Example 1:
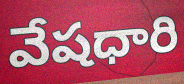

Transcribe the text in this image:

వేషధారి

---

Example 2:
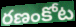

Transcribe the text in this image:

రణంకోట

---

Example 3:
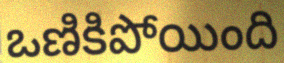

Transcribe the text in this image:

ఒణికిపోయింది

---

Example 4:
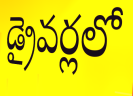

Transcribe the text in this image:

డ్రైవర్లలో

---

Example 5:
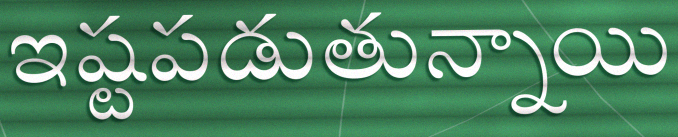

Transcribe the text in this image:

ఇష్టపడుతున్నాయి